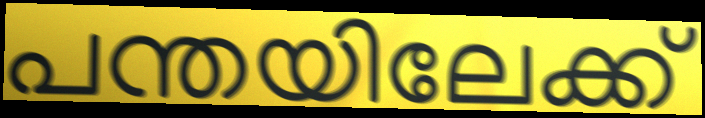
പന്തയിലേക്ക്